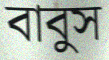
বাবুস